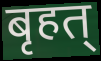
बृहत्